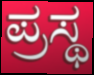
ಪ್ರಸ್ಥ